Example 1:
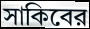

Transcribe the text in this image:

সাকিবের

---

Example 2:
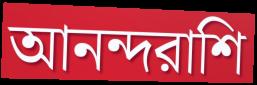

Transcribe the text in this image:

আনন্দরাশি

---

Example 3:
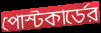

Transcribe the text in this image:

পোস্টকার্ডের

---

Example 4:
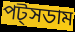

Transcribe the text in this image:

পট্‌সডাম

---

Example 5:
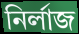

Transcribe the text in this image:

নির্লাজ